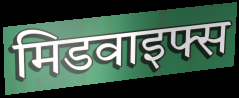
मिडवाइफ्स